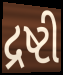
દ્રષ્ટી